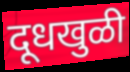
दूधखुळी